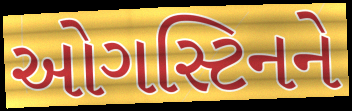
ઓગસ્ટિનને